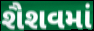
શૈશવમાં